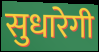
सुधारेगी